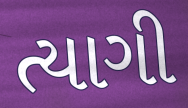
ત્યાગી